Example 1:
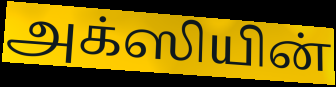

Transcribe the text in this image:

அக்ஸியின்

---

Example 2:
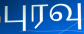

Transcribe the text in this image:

புரவு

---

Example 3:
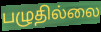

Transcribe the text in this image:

பழுதில்லை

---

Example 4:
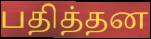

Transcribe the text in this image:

பதித்தன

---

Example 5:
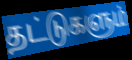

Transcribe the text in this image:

தட்டுகளும்